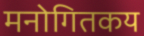
मनोगितकय